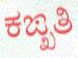
ಕಙ್ಖತಿ